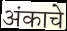
अंकाचे